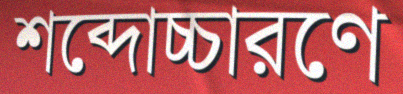
শব্দোচ্চারণে